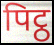
पिट्ठ